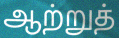
ஆற்றுத்